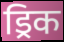
ड्रिक